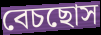
বেচছোস